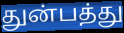
துன்பத்து